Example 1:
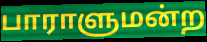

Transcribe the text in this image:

பாராளுமன்ற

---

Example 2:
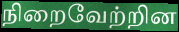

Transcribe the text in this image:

நிறைவேற்றின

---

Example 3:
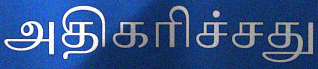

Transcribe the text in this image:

அதிகரிச்சது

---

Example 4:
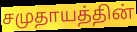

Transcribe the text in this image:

சமுதாயத்தின்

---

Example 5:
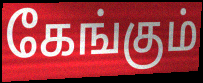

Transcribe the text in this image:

கேங்கும்